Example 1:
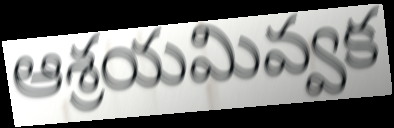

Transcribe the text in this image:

ఆశ్రయమివ్వక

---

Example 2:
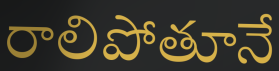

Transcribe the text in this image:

రాలిపోతూనే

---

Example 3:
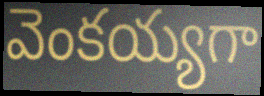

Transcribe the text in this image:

వెంకయ్యగా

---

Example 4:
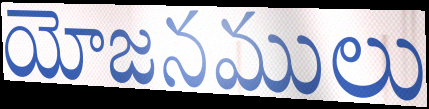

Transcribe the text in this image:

యోజనములు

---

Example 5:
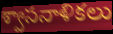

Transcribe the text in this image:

శ్వాసనాళికలు